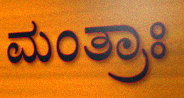
ಮಂತ್ರಾಃ